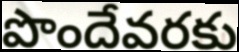
పొందేవరకు